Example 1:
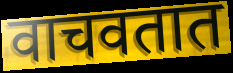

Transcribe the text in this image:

वाचवतात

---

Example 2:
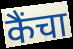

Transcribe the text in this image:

कैंचा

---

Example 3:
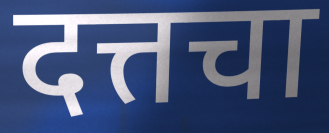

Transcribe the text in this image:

दत्तचा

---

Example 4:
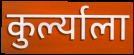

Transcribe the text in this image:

कुर्ल्याला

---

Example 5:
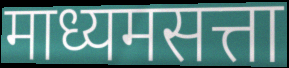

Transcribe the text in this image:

माध्यमसत्ता